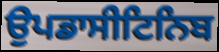
ਉਪਡਾਸੀਟਿਨਿਬ